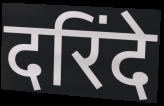
दरिंदे